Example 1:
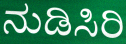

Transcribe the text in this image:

ನುಡಿಸಿರಿ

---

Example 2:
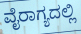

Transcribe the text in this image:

ವೈರಾಗ್ಯದಲ್ಲಿ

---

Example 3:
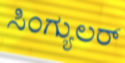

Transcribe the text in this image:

ಸಿಂಗ್ಯುಲರ್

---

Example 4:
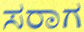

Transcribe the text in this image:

ಸರಾಗ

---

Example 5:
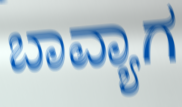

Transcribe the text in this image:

ಬಾವ್ಯಾಗ